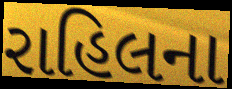
રાહિલના